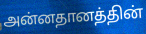
அன்னதானத்தின்